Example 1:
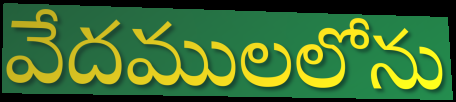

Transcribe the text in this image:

వేదములలోను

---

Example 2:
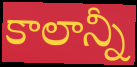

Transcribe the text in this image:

కాలాన్నీ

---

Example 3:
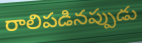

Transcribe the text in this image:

రాలిపడినప్పుడు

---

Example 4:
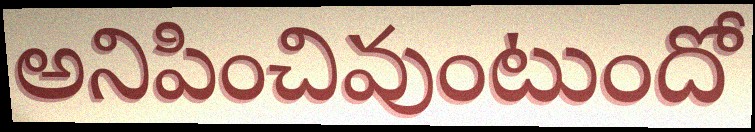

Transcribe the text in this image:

అనిపించివుంటుందో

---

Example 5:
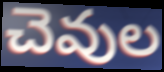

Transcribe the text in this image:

చెవుల